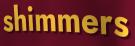
shimmers